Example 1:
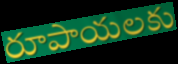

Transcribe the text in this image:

రూపాయలకు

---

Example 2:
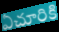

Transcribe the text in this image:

ఏచూరికి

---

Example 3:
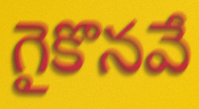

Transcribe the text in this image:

గైకొనవే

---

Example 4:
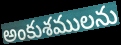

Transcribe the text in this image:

అంకుశములను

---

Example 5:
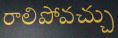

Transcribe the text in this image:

రాలిపోవచ్చు